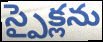
స్పైక్లను